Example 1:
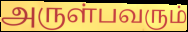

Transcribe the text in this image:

அருள்பவரும்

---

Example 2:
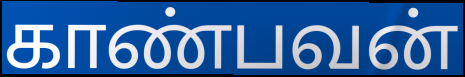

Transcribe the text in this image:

காண்பவன்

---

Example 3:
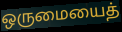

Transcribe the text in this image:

ஒருமையைத்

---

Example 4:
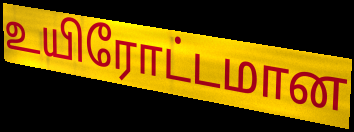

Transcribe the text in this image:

உயிரோட்டமான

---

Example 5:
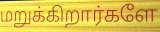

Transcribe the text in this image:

மறுக்கிறார்களே